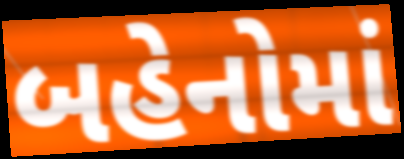
બહેનોમાં